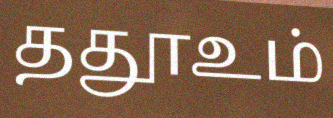
ததூஉம்